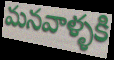
మనవాళ్ళకి